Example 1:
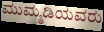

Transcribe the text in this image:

ಮುಮ್ಮಡಿಯವರು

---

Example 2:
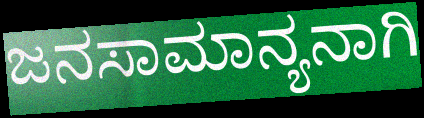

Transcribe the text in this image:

ಜನಸಾಮಾನ್ಯನಾಗಿ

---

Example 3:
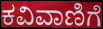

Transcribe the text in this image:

ಕವಿವಾಣಿಗೆ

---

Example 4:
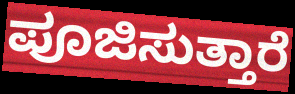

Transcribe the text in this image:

ಪೂಜಿಸುತ್ತಾರೆ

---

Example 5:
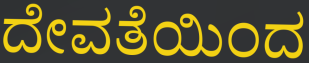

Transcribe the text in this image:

ದೇವತೆಯಿಂದ